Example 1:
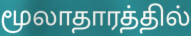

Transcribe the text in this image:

மூலாதாரத்தில்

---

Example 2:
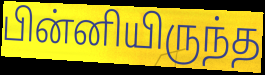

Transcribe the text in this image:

பின்னியிருந்த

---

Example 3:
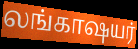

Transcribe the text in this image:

லங்காஷயர்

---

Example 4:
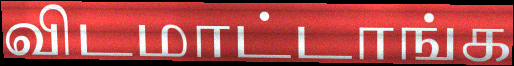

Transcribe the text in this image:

விடமாட்டாங்க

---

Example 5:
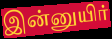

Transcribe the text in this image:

இன்னுயிர்